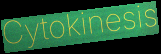
Cytokinesis